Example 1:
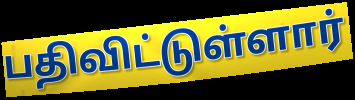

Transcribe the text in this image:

பதிவிட்டுள்ளார்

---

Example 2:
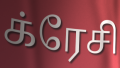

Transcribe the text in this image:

க்ரேசி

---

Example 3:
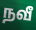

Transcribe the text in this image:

நவீ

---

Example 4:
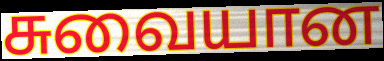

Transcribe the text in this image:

சுவையான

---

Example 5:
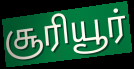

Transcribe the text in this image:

சூரியூர்